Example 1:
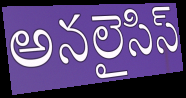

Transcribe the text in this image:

అనలైసిస్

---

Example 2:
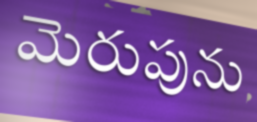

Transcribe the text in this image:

మెరుపును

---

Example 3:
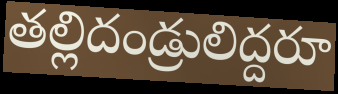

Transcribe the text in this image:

తల్లిదండ్రులిద్దరూ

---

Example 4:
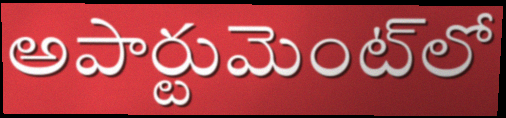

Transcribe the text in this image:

అపార్టుమెంట్‌లో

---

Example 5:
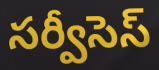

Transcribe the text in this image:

సర్వీసెస్